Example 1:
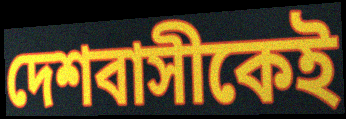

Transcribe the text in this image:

দেশবাসীকেই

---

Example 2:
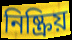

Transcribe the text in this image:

নিষ্ক্রিয়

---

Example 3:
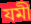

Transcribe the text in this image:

যমী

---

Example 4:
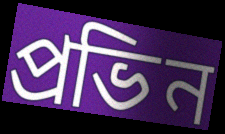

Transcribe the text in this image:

প্রভিন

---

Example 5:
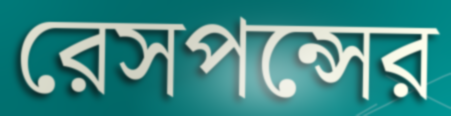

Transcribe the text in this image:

রেসপন্সের